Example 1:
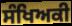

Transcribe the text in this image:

ਸੰਖਿਅਕੀ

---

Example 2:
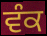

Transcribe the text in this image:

ਵੰਕ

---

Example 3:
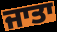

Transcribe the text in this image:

ਜਾਤਾ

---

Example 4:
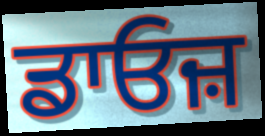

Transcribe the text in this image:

ਡਾਓਜ਼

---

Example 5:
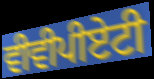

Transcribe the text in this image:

ਵੀਵੀਪੀਏਟੀ